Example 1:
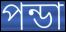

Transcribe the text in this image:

পন্ডা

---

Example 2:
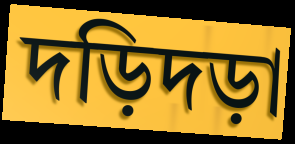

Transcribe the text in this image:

দড়িদড়া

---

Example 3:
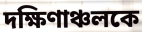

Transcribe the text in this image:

দক্ষিণাঞ্চলকে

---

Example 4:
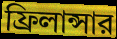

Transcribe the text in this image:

ফ্রিলান্সার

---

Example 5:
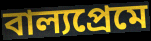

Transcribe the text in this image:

বাল্যপ্রেমে